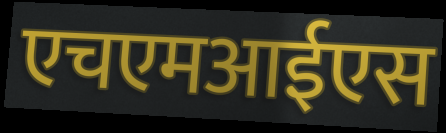
एचएमआईएस